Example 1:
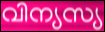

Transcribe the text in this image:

വിന്യസ്യ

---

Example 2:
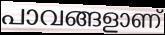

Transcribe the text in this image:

പാവങ്ങളാണ്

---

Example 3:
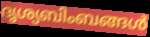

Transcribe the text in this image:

ദൃശ്യബിംബങ്ങൾ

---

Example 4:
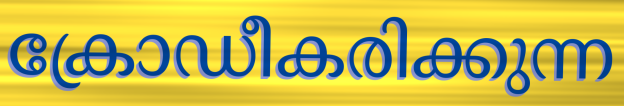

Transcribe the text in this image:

ക്രോഡീകരിക്കുന്ന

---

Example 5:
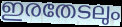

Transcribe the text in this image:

ഇരതേടലും